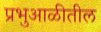
प्रभुआळीतील